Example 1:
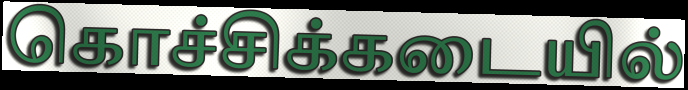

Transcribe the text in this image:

கொச்சிக்கடையில்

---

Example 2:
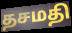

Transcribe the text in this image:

தசமதி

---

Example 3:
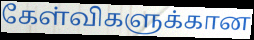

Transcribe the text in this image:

கேள்விகளுக்கான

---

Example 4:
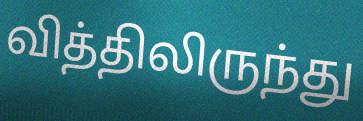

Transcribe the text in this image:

வித்திலிருந்து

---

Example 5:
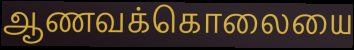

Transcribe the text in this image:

ஆணவக்கொலையை